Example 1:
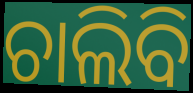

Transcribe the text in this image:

ଚାଲିବି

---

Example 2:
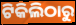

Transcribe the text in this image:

ଟିକିଲିଠାରୁ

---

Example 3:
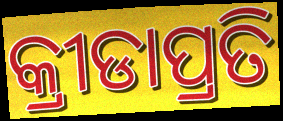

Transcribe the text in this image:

କ୍ରୀଡାପ୍ରତି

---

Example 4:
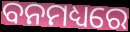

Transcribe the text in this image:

ବନମଧ୍ୟରେ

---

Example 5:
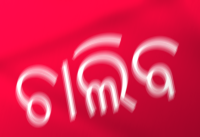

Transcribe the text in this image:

ଚାଲିବ